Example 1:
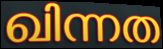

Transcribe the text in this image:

ഖിന്നത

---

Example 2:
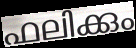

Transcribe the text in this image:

ഫലിക്കും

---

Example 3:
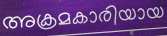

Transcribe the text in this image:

അക്രമകാരിയായ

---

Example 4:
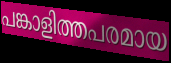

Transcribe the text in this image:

പങ്കാളിത്തപരമായ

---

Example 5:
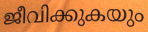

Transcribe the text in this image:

ജീവിക്കുകയും